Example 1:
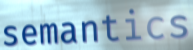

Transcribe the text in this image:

semantics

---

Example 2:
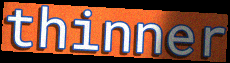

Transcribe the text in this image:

thinner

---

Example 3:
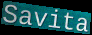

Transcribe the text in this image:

Savita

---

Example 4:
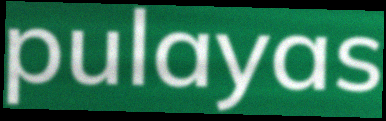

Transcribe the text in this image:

pulayas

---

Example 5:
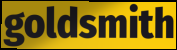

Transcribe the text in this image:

goldsmith